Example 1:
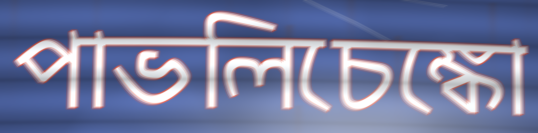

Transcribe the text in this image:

পাভলিচেঙ্কো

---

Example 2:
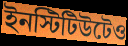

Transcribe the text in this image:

ইনস্টিটিউটেও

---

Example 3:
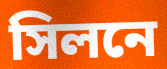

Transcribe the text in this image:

সিলনে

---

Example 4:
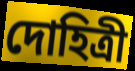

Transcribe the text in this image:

দোহিত্রী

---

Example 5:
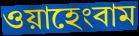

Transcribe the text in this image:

ওয়াহেংবাম